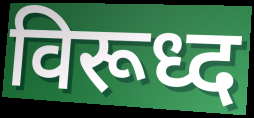
विरूध्द